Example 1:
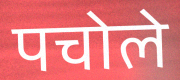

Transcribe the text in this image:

पचोले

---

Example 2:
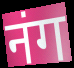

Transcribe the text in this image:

नंग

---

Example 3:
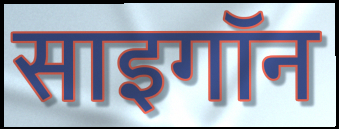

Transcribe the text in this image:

साइगॉन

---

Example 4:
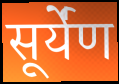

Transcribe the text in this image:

सूर्ये॑ण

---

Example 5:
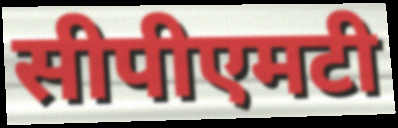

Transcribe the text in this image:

सीपीएमटी